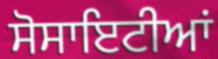
ਸੋਸਾਇਟੀਆਂ